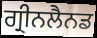
ਗ੍ਰੀਨਲੈਨਡ